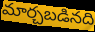
మార్చబడినది